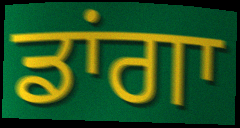
ਡਾਂਗਾ